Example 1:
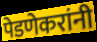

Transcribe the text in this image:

पेडणेकरांनी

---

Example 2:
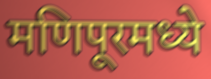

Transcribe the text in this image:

मणिपूरमध्ये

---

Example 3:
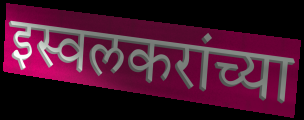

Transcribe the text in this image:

इस्वलकरांच्या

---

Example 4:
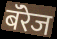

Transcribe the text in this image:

बॅरेज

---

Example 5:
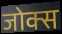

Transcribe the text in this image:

जोक्स